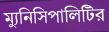
ম্যুনিসিপালিটির